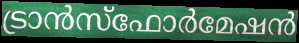
ട്രാൻസ്ഫോർമേഷൻ